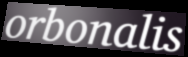
orbonalis